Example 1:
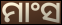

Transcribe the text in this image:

ମାଂସ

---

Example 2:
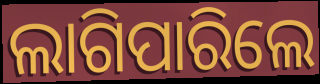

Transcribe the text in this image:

ଲାଗିପାରିଲେ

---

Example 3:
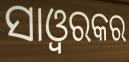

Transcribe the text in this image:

ସାଓ୍ୱରକର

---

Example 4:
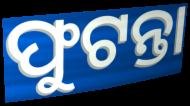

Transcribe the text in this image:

ଫୁଟନ୍ତା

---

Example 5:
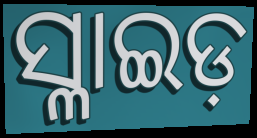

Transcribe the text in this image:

ସ୍ଳାଇଡ଼